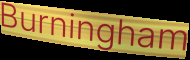
Burningham